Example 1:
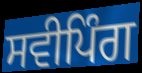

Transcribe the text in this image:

ਸਵੀਪਿੰਗ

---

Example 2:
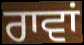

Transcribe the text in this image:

ਰਾਵਾਂ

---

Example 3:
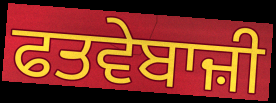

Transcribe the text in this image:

ਫਤਵੇਬਾਜ਼ੀ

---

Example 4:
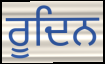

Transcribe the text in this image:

ਰੂਦਿਨ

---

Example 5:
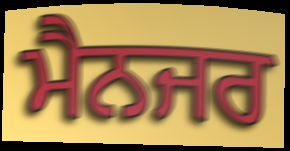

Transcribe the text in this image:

ਮੈਨਜਰ